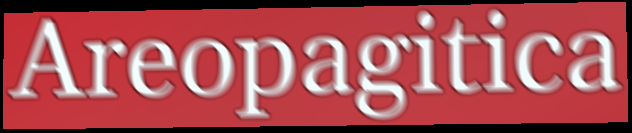
Areopagitica